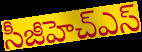
సీజీహెచ్ఎస్